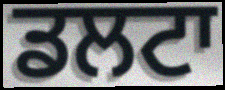
ਡਲਟਾ